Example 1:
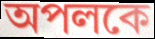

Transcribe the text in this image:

অপলকে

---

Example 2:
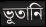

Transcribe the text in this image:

ভূতানি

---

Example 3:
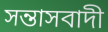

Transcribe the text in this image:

সন্তাসবাদী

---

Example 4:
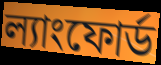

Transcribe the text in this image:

ল্যাংফোর্ড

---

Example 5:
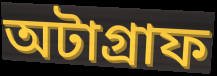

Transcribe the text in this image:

অটাগ্রাফ